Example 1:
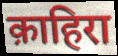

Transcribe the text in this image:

क़ाहिरा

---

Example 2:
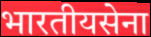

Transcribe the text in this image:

भारतीयसेना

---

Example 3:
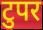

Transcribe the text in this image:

टुपर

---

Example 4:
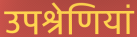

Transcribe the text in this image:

उपश्रेणियां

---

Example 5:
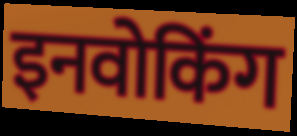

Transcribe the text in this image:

इनवोकिंग